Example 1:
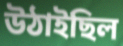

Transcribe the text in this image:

উঠাইছিল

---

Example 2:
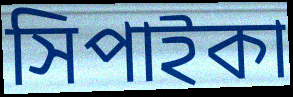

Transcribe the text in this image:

সিপাইকা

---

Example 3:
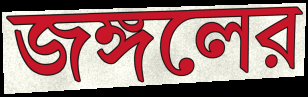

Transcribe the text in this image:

জঙ্গলের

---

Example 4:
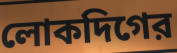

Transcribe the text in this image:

লোকদিগের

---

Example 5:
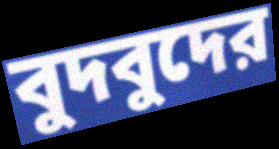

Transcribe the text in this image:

বুদবুদের